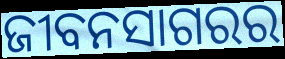
ଜୀବନସାଗରର